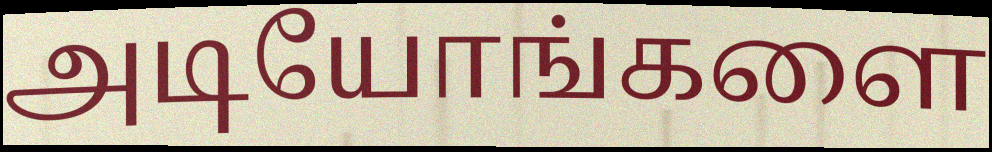
அடியோங்களை